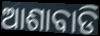
ଆଶାବାଡି